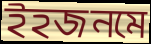
ইহজনমে